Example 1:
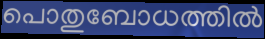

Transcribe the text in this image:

പൊതുബോധത്തിൽ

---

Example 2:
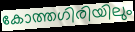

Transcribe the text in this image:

കോത്തഗിരിയിലും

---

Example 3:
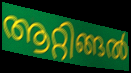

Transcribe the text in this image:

ആറ്റിങ്ങൽ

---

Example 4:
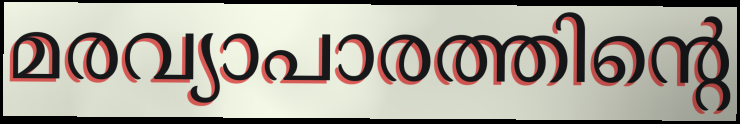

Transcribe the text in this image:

മരവ്യാപാരത്തിന്റെ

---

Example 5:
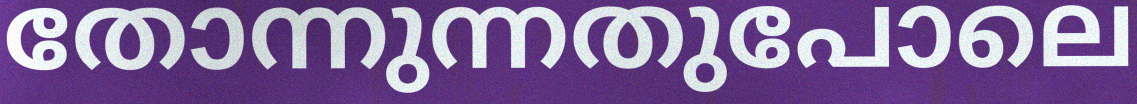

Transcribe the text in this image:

തോന്നുന്നതുപോലെ